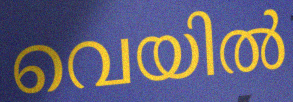
വെയിൽ